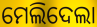
ମେଲିଦେଲା